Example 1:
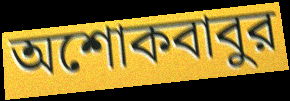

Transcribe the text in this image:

অশোকবাবুর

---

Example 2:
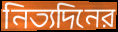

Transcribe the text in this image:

নিত্যদিনের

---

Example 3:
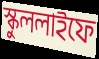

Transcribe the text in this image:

স্কুললাইফে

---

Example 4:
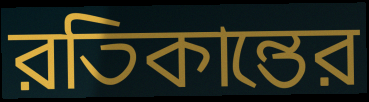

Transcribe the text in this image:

রতিকান্তের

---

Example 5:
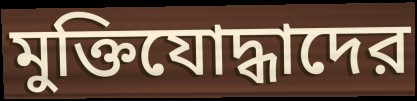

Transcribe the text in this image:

মুক্তিযোদ্ধাদের